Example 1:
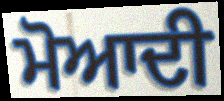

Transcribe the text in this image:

ਮੋਆਦੀ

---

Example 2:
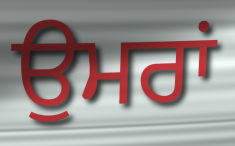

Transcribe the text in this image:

ਉਮਰਾਂ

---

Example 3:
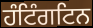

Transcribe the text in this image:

ਹੰਟਿੰਗਟਿਨ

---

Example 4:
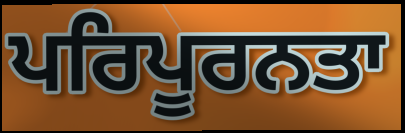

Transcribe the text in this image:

ਪਰਿਪੂਰਨਤਾ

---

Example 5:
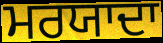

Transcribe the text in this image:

ਮਰਯਾਦਾ